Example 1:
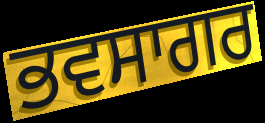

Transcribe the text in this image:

ਭਵਸਾਗਰ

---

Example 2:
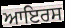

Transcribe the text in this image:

ਆਇਰਸ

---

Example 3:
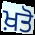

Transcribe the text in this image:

ਖ਼ਤੋ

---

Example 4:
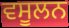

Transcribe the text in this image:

ਵਸੂਲਨ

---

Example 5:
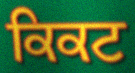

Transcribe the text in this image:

ਕਿਕਟ